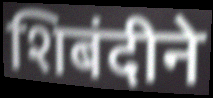
शिबंदीने